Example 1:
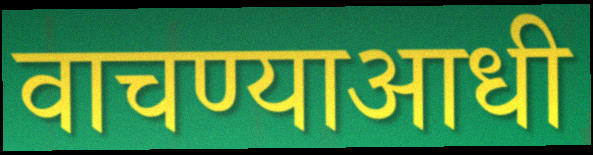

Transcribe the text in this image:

वाचण्याआधी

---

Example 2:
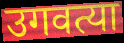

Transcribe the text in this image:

उगवत्या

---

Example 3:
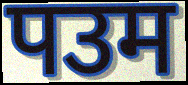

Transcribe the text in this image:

पउम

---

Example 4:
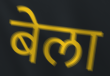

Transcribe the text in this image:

बेला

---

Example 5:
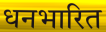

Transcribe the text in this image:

धनभारित